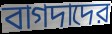
বাগদাদের